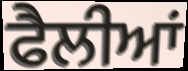
ਫੈਲੀਆਂ